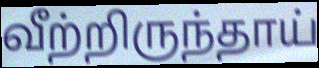
வீற்றிருந்தாய்